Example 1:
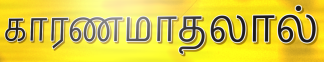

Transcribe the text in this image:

காரணமாதலால்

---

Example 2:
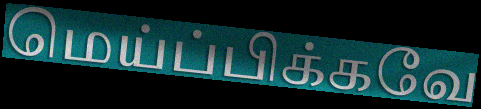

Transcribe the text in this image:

மெய்ப்பிக்கவே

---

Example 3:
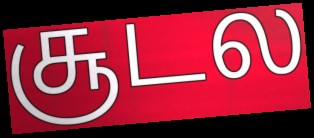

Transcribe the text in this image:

சூடல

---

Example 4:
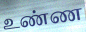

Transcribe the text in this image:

உண்ண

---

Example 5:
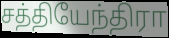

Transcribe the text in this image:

சத்தியேந்திரா